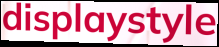
displaystyle